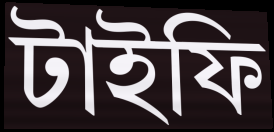
টাইফি